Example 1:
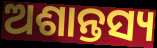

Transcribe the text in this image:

ଅଶାନ୍ତସ୍ୟ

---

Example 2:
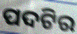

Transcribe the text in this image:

ପଦଟିର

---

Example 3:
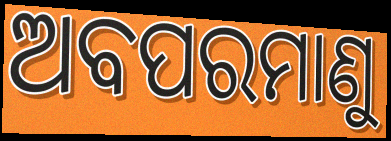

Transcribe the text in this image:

ଅବପରମାଣୁ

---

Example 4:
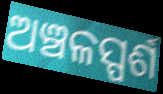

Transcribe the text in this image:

ଅଞ୍ଚଳସ୍ପର୍ଶ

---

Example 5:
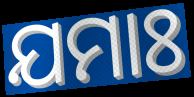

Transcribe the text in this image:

ଯମାଃ